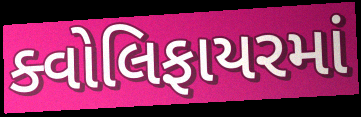
ક્વોલિફાયરમાં